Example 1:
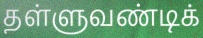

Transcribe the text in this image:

தள்ளுவண்டிக்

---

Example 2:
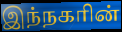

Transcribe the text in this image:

இந்நகரின்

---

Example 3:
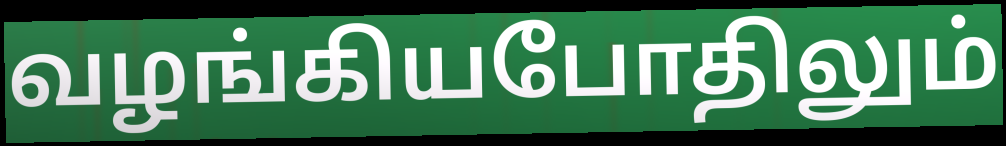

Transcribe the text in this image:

வழங்கியபோதிலும்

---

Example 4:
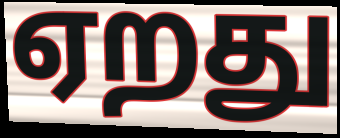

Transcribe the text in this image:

ஏறது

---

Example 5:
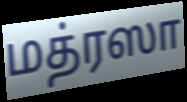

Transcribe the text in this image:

மத்ரஸா